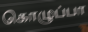
கொழுப்பா